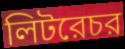
লিটরেচর